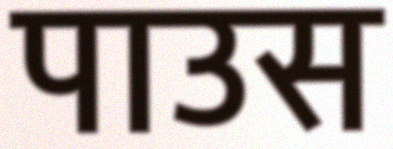
पाउस